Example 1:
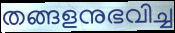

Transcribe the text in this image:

തങ്ങളനുഭവിച്ച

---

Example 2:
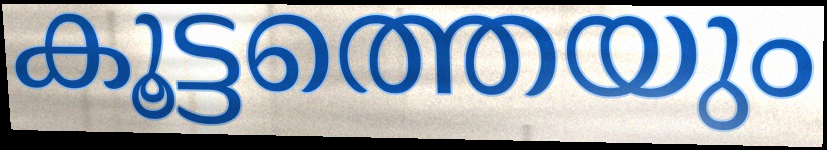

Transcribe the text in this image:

കൂട്ടത്തെയും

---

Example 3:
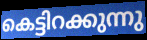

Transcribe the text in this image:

കെട്ടിറക്കുന്നു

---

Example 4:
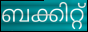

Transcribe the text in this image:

ബക്കിറ്റ്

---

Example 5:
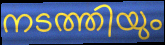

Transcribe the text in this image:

നടത്തിയും